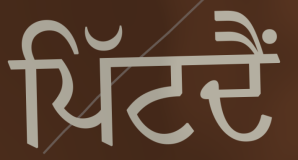
ਪਿੱਟਦੈਂ